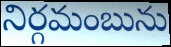
నిర్గమంబును